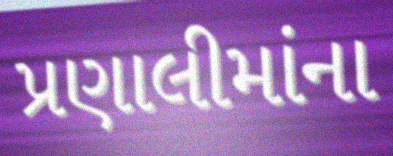
પ્રણાલીમાંના